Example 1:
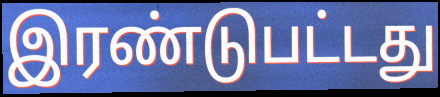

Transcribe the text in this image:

இரண்டுபட்டது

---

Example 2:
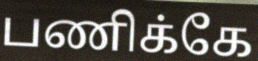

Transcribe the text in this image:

பணிக்கே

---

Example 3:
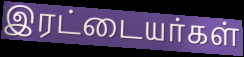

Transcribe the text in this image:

இரட்டையர்கள்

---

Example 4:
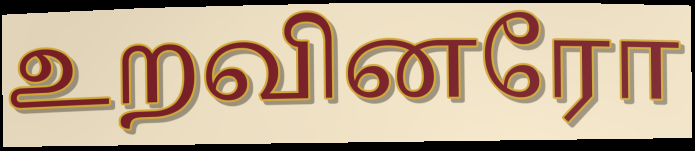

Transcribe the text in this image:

உறவினரோ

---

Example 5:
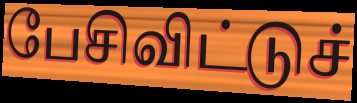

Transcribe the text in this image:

பேசிவிட்டுச்